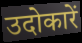
उदोकारें